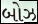
બોઝ